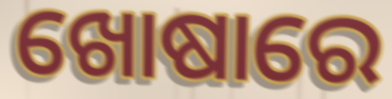
ଖୋଷାରେ